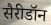
सैरीडॉन